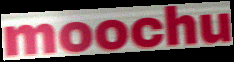
moochu